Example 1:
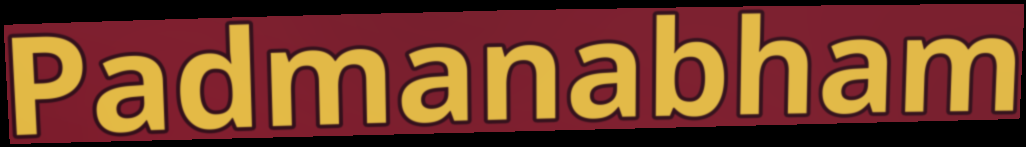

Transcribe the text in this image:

Padmanabham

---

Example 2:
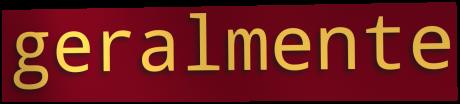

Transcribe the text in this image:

geralmente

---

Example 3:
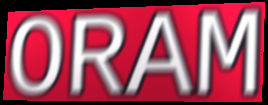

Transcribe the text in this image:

ORAM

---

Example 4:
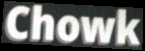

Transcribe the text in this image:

Chowk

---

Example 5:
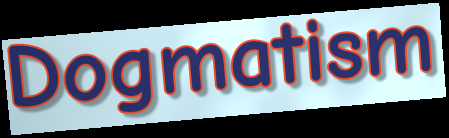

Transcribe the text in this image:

Dogmatism